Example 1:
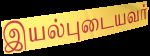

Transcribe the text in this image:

இயல்புடையவர்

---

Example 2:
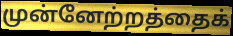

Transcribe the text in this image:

முன்னேற்றத்தைக்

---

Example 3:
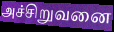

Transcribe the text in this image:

அச்சிறுவனை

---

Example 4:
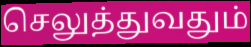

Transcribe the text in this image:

செலுத்துவதும்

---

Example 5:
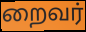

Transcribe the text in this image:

றைவர்